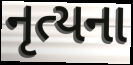
નૃત્યના